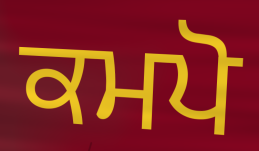
ਕਮਪੋ